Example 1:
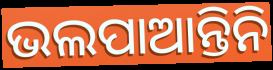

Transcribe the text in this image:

ଭଲପାଆନ୍ତିନି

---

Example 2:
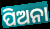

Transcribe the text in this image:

ପିଅନା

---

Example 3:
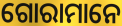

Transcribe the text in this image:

ଗୋରାମାନେ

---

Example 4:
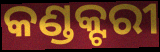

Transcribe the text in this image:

କଣ୍ଡକ୍ଟରୀ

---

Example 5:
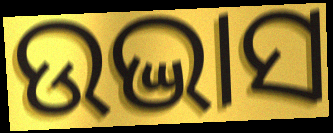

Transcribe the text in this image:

ଉଦ୍ଭାସ